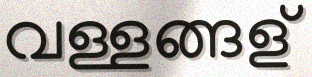
വള്ളങ്ങള്